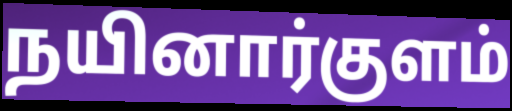
நயினார்குளம்